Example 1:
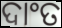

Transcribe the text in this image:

ଦାଂତ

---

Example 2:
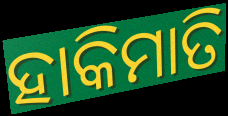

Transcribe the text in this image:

ହାକିମାତି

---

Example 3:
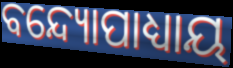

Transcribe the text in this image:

ବନ୍ଦ୍ୟୋପାଧ୍ୟାୟ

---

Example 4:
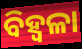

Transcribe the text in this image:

ବିହ୍ଵଳା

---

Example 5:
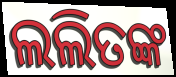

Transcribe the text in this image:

ଲଲିତଙ୍କ